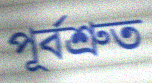
পূর্বশ্রুত